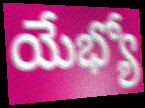
యేభ్యో